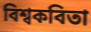
বিশ্বকবিতা